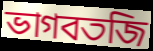
ভাগবতজি